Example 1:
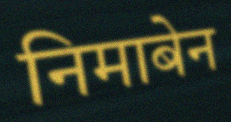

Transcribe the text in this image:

निमाबेन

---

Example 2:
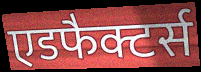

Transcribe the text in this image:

एडफैक्टर्स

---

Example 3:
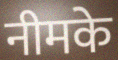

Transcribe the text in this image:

नीमके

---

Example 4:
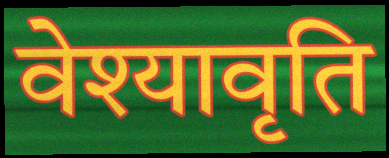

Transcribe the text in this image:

वेश्यावृति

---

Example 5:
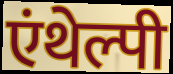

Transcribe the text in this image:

एंथेल्पी